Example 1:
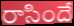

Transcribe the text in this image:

రాసిందే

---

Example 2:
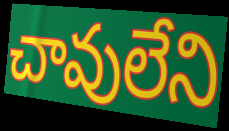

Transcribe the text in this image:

చావులేని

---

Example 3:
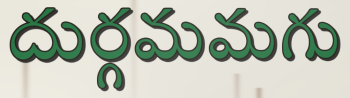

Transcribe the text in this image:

దుర్గమమగు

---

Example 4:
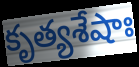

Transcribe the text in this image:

కృత్యశేషాః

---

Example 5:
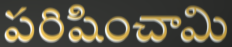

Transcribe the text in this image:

పరిషించామి